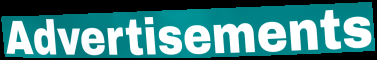
Advertisements